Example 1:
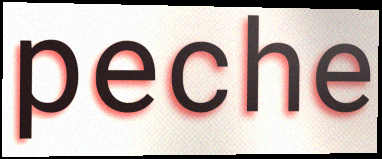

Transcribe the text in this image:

peche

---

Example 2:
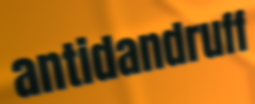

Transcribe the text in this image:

antidandruff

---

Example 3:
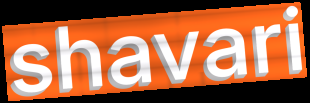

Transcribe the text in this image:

shavari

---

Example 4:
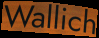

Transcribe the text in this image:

Wallich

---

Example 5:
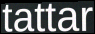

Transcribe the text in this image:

tattar